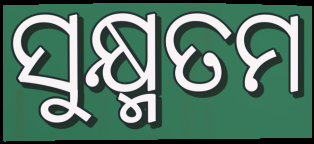
ସୁକ୍ଷ୍ମତମ